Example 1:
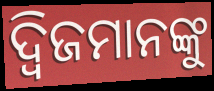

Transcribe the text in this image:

ଦ୍ୱିଜମାନଙ୍କୁ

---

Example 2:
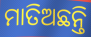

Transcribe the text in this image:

ମାତିଅଛନ୍ତି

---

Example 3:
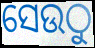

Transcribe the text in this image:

ସେଉଠୁ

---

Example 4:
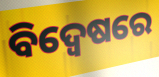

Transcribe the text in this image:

ବିଦ୍ୱେଷରେ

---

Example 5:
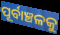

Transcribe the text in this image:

ପୂର୍ବାଞ୍ଚଳକୁ